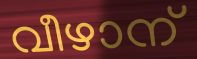
വീഴാന്